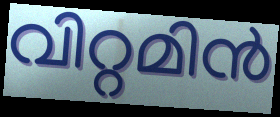
വിറ്റമിൻ